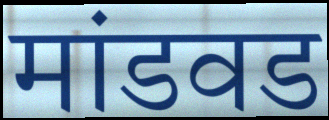
मांडवड